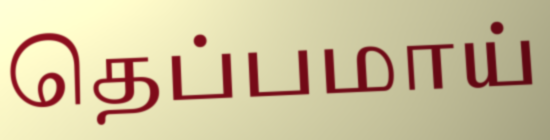
தெப்பமாய்